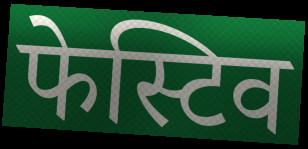
फेस्टिव